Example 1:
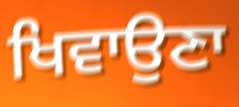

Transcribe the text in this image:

ਖਿਵਾਉਣਾ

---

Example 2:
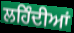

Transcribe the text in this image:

ਲਹਿੰਦੀਆਂ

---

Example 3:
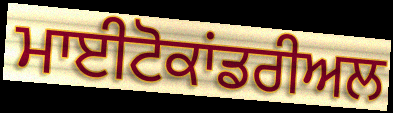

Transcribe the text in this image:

ਮਾਈਟੋਕਾਂਡਰੀਅਲ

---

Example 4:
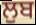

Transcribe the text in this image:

ਲੁਬ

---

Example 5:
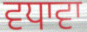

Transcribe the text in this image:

ਵਧਾਵਾ